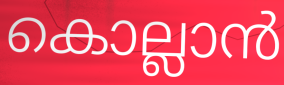
കൊല്ലാൻ